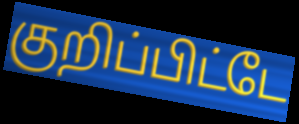
குறிப்பிட்டே